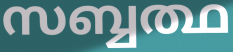
സബ്ബത്ഥ